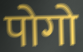
पोगो